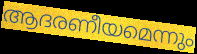
ആദരണീയമെന്നും